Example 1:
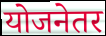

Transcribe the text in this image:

योजनेतर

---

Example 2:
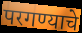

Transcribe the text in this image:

परगण्याचे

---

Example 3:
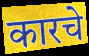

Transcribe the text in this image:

कारचे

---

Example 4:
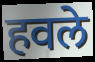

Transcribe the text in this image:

हवले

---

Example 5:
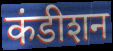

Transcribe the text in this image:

कंडीशन